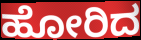
ಹೋರಿದ